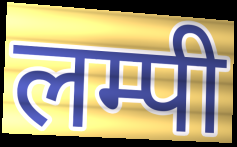
लम्पी